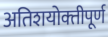
अतिशयोक्‍तीपूर्ण